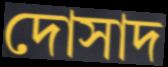
দোসাদ